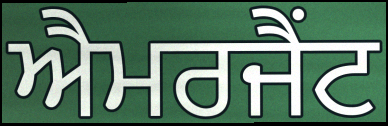
ਐਮਰਜੈਂਟ